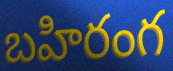
బహిరంగ